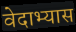
वेदाभ्यास